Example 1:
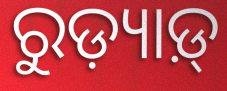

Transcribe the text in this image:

ରୁଡ଼୍ୟାଡ଼୍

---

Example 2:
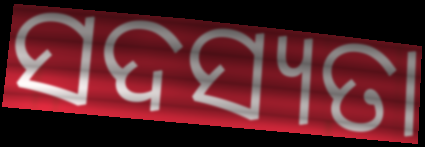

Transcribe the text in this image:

ସଦସ୍ଯତା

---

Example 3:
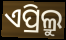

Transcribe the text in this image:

ଏପ୍ରିଲ୍ରୁ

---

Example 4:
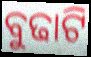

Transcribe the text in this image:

ବୁଢାଟି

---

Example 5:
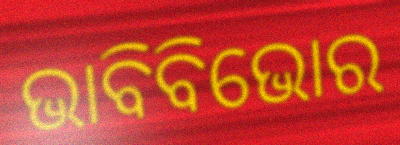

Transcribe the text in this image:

ଭାବିବିଭୋର